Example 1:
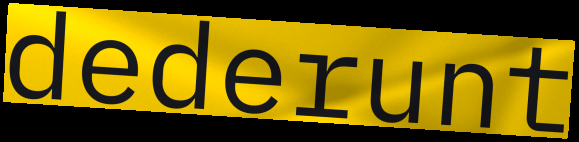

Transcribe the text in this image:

dederunt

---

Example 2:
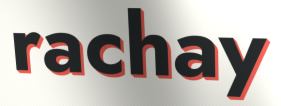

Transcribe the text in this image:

rachay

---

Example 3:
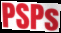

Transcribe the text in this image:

PSPs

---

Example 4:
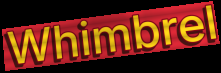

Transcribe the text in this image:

Whimbrel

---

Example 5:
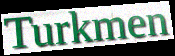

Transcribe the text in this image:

Turkmen